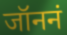
जॉननं